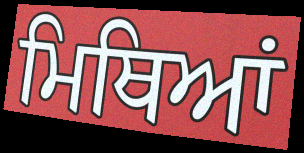
ਮਿਥਿਆਂ